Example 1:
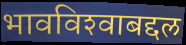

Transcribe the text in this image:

भावविश्वाबद्दल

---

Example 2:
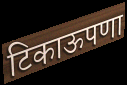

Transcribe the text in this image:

टिकाऊपणा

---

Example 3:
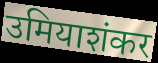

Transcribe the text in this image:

उमियाशंकर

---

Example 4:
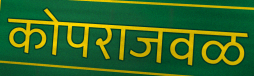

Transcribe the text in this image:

कोपराजवळ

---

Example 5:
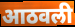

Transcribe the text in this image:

आठवली